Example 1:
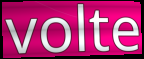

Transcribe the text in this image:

volte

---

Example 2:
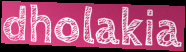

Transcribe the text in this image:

dholakia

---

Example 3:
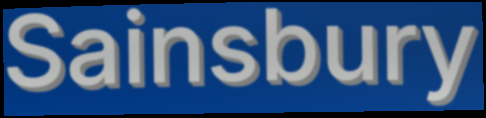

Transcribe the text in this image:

Sainsbury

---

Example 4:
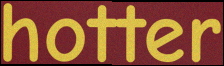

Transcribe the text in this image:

hotter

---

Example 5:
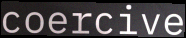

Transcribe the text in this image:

coercive